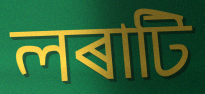
লৰাটি